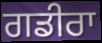
ਗਡੀਰਾ